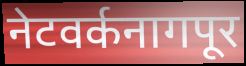
नेटवर्कनागपूर